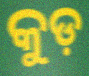
କୁଡ଼